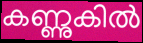
കണ്ണുകിൽ